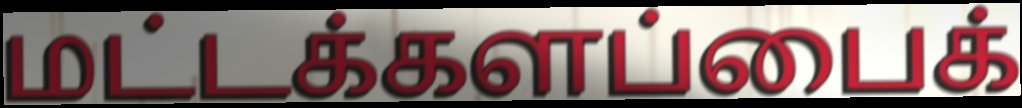
மட்டக்களப்பைக்